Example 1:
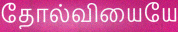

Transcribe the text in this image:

தோல்வியையே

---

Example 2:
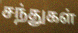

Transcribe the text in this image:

சந்துகள்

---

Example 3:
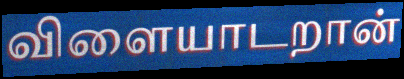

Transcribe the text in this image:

விளையாடறான்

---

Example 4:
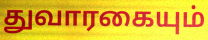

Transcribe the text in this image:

துவாரகையும்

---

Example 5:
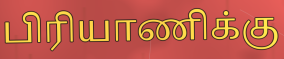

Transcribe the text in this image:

பிரியாணிக்கு